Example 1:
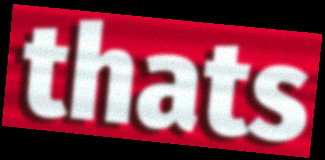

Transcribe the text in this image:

thats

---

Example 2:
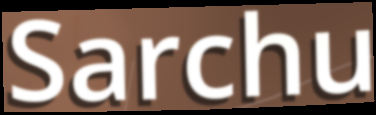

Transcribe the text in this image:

Sarchu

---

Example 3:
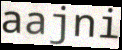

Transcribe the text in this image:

aajni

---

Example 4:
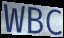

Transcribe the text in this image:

WBC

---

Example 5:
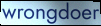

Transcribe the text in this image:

wrongdoer